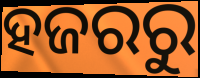
ହଜରରୁ